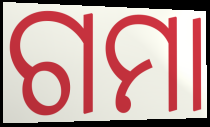
ଗମା